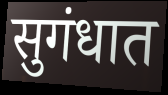
सुगंधात